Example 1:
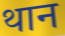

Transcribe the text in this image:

थान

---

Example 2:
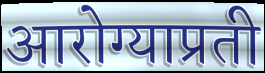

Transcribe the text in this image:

आरोग्याप्रती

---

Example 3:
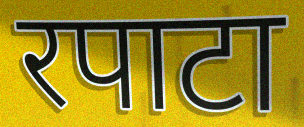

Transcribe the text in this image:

रपाटा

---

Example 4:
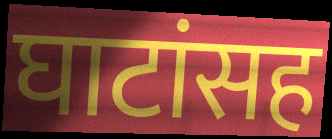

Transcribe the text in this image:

घाटांसह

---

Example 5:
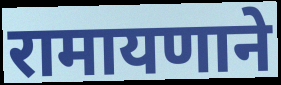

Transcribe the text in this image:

रामायणाने